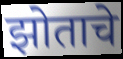
झोताचे